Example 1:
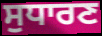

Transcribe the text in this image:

ਸੁਧਾਰਣ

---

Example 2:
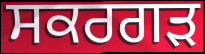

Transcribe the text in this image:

ਸਕਰਗੜ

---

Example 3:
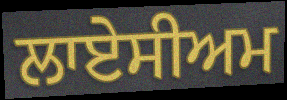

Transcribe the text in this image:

ਲਾਏਸੀਅਮ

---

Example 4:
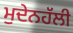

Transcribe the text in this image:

ਮੁਦੇਨਹੱਲੀ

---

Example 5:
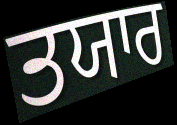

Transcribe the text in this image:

ਤਯਾਰ